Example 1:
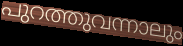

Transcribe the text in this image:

പുറത്തുവന്നാലും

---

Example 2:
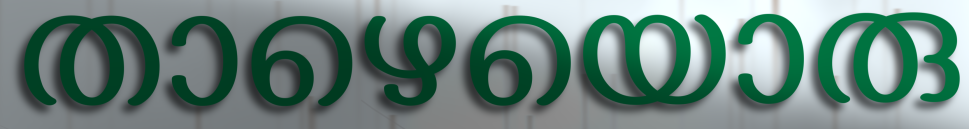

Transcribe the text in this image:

താഴെയൊരു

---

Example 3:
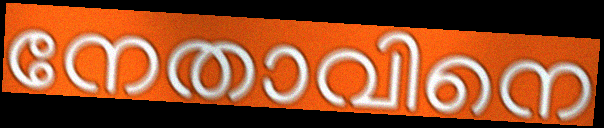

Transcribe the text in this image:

നേതാവിനെ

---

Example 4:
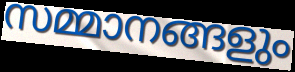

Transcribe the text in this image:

സമ്മാനങ്ങളും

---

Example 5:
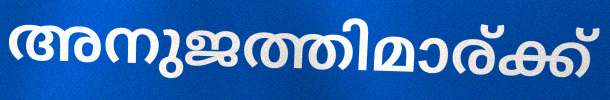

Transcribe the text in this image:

അനുജത്തിമാര്ക്ക്